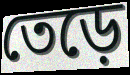
তেড়ে